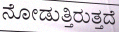
ನೋಡುತ್ತಿರುತ್ತದೆ